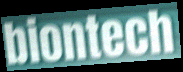
biontech